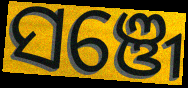
ସଞ୍ଜେ